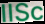
IISc